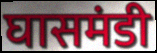
घासमंडी